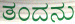
ತಂದನು